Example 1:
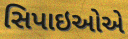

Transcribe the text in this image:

સિપાઇઓએ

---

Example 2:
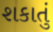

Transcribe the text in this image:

શકાતું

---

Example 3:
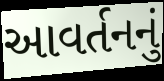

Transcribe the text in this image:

આવર્તનનું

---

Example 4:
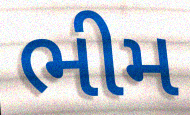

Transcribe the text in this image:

ભીમ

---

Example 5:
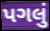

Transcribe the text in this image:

પગલું